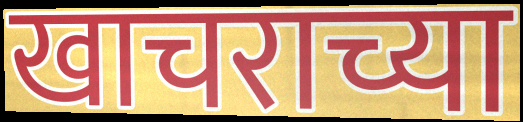
खाचराच्या